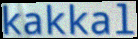
kakkal